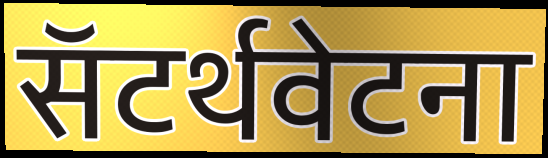
सॅटर्थवेटना